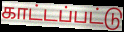
காட்டப்பட்டு